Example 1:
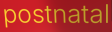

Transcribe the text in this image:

postnatal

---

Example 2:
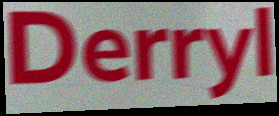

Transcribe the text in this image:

Derryl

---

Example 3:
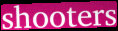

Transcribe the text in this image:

shooters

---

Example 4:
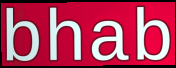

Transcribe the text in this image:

bhab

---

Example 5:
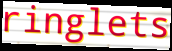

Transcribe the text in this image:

ringlets